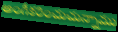
అంగీకరించుచున్నాము